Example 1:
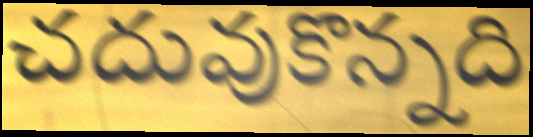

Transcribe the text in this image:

చదువుకొన్నది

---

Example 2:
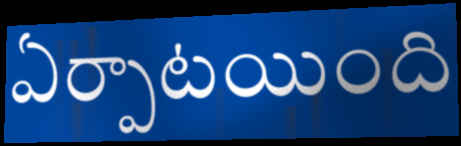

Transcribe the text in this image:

ఏర్పాటయింది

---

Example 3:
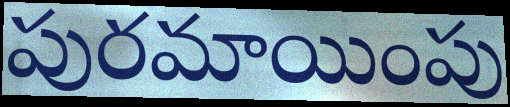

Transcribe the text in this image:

పురమాయింపు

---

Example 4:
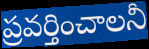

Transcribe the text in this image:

ప్రవర్తించాలనీ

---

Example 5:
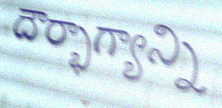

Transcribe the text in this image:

దౌర్భాగ్యాన్ని